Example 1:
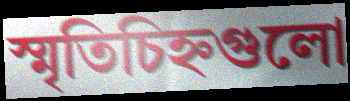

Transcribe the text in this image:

স্মৃতিচিহ্নগুলো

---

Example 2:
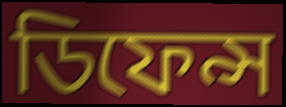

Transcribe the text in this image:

ডিফেন্স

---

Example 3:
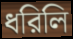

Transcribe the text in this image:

ধরিলি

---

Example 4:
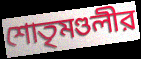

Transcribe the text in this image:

শোতৃমণ্ডলীর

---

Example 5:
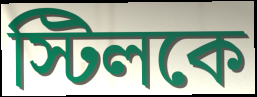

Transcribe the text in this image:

স্টিলকে